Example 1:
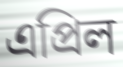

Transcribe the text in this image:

এপ্ৰিল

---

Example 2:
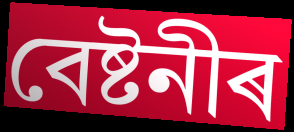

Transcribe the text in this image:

বেষ্টনীৰ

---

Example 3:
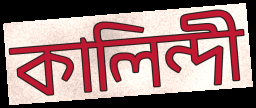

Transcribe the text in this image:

কালিন্দী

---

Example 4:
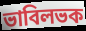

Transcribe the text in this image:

ভাবিলভক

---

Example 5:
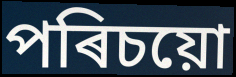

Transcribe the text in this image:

পৰিচয়ো